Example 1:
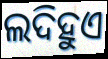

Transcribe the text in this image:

ଲଦିହୁଏ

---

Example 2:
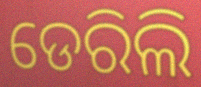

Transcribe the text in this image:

ଡେରିଲି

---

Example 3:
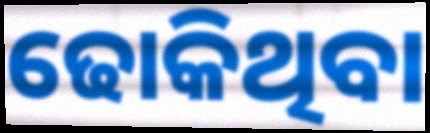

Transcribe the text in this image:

ଢୋକିଥିବା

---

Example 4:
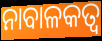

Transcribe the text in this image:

ନାବାଳକତ୍ଵ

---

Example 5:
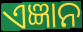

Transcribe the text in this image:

ଏଜ୍ଞାନ